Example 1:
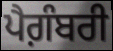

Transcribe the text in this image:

ਪੈਗ਼ੰਬਰੀ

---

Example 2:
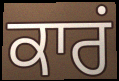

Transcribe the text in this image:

ਕਾਰਂ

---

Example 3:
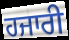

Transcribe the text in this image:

ਹਜਾਰੀ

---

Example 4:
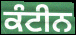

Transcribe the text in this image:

ਕੰਟੀਨ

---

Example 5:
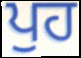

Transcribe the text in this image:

ਪੁਹ